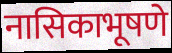
नासिकाभूषणे